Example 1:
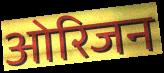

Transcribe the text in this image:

ओरिजन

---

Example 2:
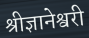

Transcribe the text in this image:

श्रीज्ञानेश्वरी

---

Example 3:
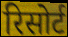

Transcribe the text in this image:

रिसोर्ट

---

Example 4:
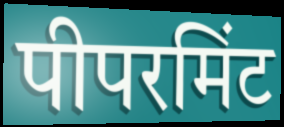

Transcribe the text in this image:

पीपरमिंट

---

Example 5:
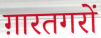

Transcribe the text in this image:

ग़ारतगरों